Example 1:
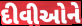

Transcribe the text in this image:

દીવીઓને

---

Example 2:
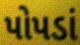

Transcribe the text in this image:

પોપડાં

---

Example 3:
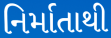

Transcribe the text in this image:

નિર્માતાથી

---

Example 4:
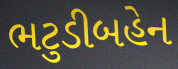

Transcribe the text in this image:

ભટુડીબહેન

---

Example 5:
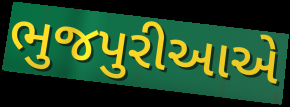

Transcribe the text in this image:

ભુજપુરીઆએ